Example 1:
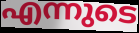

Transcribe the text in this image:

എന്നുടെ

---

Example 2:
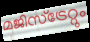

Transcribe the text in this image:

മജിസ്ട്രേറ്റും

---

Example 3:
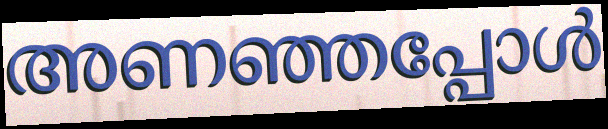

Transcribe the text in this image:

അണഞ്ഞപ്പോൾ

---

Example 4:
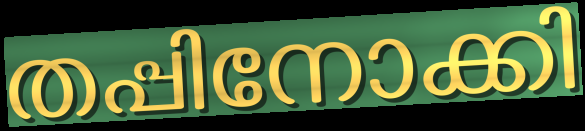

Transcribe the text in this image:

തപ്പിനോക്കി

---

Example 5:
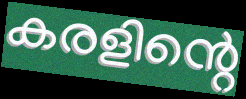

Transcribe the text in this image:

കരളിന്റെ